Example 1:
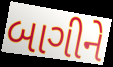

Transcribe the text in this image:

બાગીને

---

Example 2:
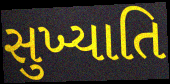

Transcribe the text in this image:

સુખ્યાતિ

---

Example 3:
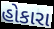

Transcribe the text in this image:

હોકારા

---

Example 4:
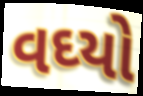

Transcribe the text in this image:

વઘ્યો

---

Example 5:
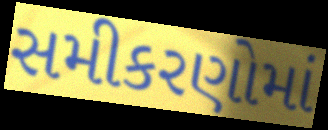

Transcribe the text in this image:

સમીકરણોમાં